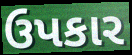
ઉપકાર